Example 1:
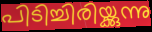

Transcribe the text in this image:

പിടിച്ചിരിയ്ക്കുന്നു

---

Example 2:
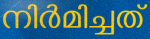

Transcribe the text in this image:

നിർമിച്ചത്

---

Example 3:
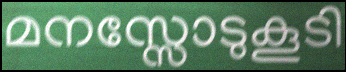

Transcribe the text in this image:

മനസ്സോടുകൂടി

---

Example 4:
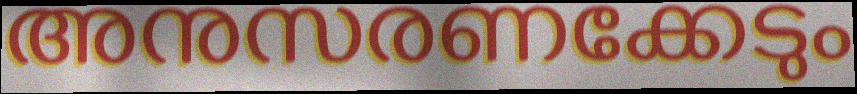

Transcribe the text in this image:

അനുസരണക്കേടും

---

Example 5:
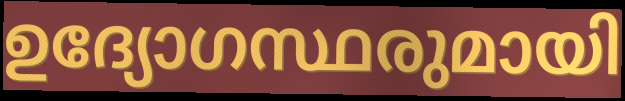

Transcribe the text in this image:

ഉദ്യോഗസ്ഥരുമായി